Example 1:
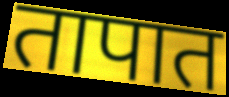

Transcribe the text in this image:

तापात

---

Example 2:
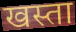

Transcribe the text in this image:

खस्ता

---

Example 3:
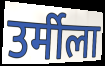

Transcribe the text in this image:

उर्मीला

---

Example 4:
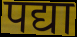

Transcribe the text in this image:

पद्या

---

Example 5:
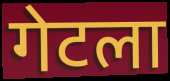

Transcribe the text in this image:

गेटला